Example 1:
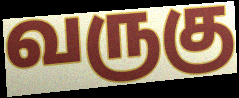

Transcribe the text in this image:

வருகு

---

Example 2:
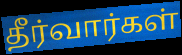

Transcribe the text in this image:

தீர்வார்கள்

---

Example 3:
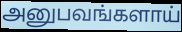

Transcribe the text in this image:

அனுபவங்களாய்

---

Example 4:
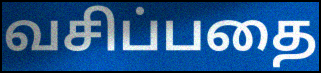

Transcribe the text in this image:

வசிப்பதை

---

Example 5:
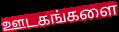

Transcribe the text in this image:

ஊடகங்களை